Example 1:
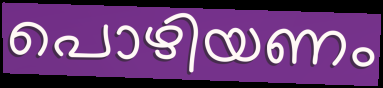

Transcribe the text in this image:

പൊഴിയണം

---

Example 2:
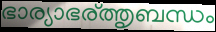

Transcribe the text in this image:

ഭാര്യാഭര്ത്തൃബന്ധം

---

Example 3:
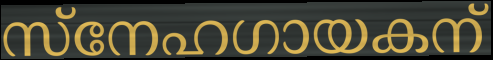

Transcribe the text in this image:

സ്നേഹഗായകന്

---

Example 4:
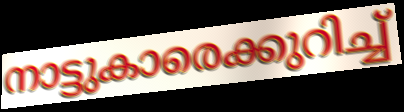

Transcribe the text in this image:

നാട്ടുകാരെക്കുറിച്ച്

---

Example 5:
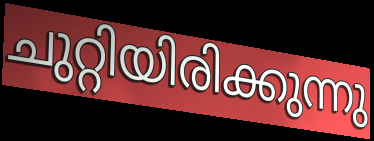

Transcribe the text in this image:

ചുറ്റിയിരിക്കുന്നു